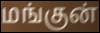
மங்குன்